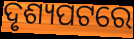
ଦୃଶ୍ୟପଟରେ